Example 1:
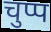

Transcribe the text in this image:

चुप्प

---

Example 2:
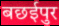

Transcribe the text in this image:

बछईपुर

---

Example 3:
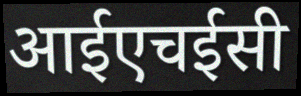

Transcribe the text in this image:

आईएचईसी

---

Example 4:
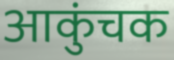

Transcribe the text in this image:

आकुंचक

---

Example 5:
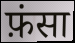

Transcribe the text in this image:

फ़ंसा